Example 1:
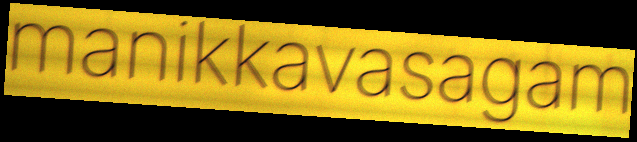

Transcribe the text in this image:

manikkavasagam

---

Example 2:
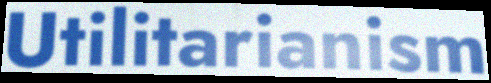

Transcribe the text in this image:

Utilitarianism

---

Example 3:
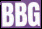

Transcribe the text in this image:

BBG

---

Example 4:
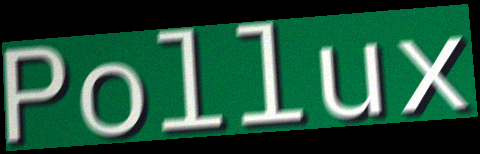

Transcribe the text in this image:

Pollux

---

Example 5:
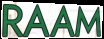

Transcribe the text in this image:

RAAM